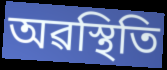
অৱস্থিতি